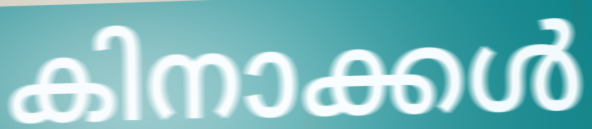
കിനാക്കൾ